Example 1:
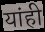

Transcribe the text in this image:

यांही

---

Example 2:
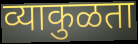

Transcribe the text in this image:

व्याकुळता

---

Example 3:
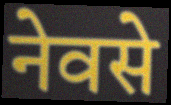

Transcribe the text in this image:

नेवसे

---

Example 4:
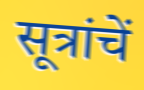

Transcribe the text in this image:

सूत्रांचें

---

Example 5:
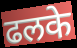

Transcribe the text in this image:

ढलके